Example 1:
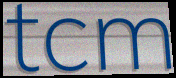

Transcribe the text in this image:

tcm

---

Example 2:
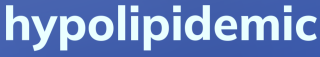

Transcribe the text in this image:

hypolipidemic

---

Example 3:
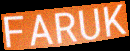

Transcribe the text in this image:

FARUK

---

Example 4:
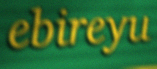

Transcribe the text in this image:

ebireyu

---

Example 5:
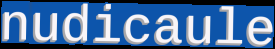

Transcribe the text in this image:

nudicaule